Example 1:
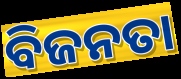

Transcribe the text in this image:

ବିଜନତା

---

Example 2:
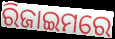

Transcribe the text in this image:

ରିଜାଇମରେ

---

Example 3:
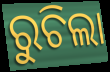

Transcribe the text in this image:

ରୁଚିଲା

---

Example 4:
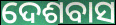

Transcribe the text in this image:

ଦେଶବାସ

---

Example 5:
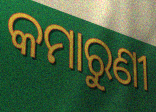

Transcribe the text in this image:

କମାରୁଣୀ